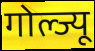
गोल्ज्यू